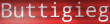
Buttigieg